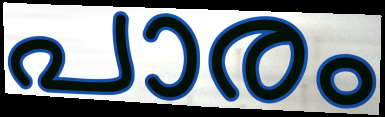
പാരം